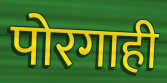
पोरगाही